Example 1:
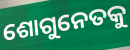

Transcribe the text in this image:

ଶୋଗୁନେତକୁ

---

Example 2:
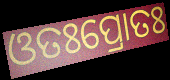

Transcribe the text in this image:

ଓତଃପ୍ରୋତଃ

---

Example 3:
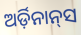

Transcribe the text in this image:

ଅର୍ଡ଼ିନାନ୍‌ସ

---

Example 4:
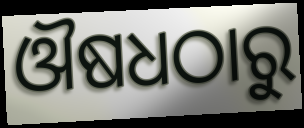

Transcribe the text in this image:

ଔଷଧଠାରୁ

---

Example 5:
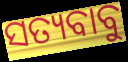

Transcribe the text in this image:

ସତ୍ୟବାବୁ